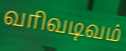
வரிவடிவம்